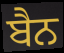
ਬੈਨ